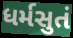
ધર્મસુતં